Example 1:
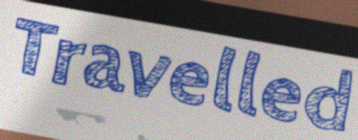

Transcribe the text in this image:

Travelled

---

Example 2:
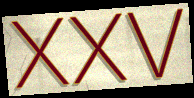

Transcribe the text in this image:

XXV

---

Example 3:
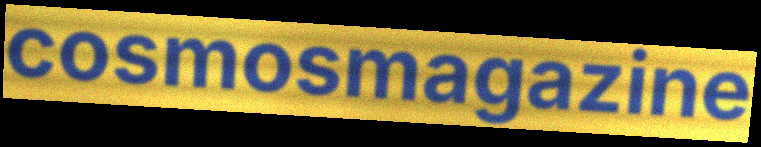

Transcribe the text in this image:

cosmosmagazine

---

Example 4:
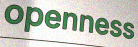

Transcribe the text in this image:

openness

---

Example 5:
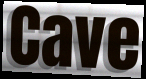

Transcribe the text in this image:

Cave